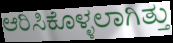
ಆರಿಸಿಕೊಳ್ಳಲಾಗಿತ್ತು